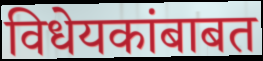
विधेयकांबाबत